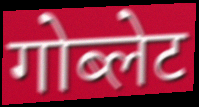
गोब्लेट